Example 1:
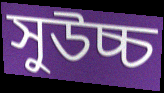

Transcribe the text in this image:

সুউচ্চ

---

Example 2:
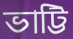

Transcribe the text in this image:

ভাট্টি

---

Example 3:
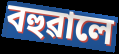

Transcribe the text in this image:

বহুৱালে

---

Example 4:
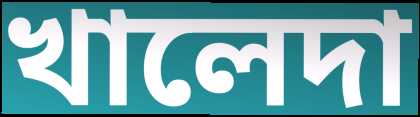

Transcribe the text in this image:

খালেদা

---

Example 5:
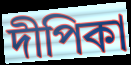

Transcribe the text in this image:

দীপিকা